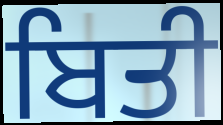
ਬਿਤੀ